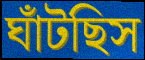
ঘাঁটছিস